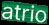
atrio